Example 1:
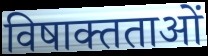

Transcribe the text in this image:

विषाक्तताओं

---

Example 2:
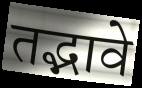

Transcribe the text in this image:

तद्भावे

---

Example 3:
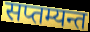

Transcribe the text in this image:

सप्तम्यन्त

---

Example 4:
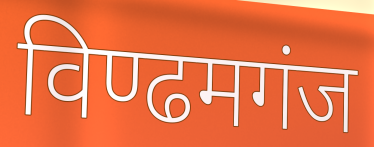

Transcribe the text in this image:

विण्ढमगंज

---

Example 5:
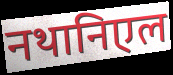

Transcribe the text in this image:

नथानिएल